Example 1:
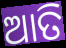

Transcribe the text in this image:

ଆତି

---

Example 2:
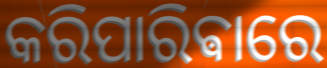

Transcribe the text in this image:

କରିପାରିଵାରେ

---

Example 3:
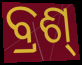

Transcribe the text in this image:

ବ୍ରଶ୍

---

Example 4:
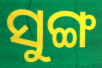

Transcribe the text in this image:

ସୁଙ୍ଗ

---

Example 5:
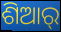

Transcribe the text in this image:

ଶିଆର୍